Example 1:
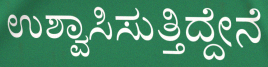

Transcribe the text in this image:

ಉಶ್ವಾಸಿಸುತ್ತಿದ್ದೇನೆ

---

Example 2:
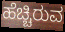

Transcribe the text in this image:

ಹೆಚ್ಚಿರುವ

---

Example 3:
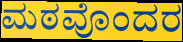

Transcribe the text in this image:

ಮಠವೊಂದರ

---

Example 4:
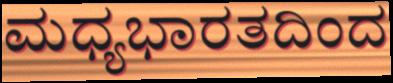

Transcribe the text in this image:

ಮಧ್ಯಭಾರತದಿಂದ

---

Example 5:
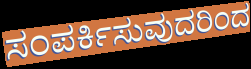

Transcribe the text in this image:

ಸಂಪರ್ಕಿಸುವುದರಿಂದ